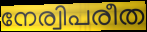
നേര്വിപരീത